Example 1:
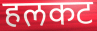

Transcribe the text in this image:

हलकट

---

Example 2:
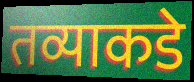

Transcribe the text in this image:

तव्याकडे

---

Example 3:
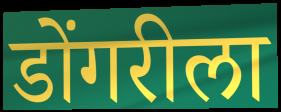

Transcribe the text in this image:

डोंगरीला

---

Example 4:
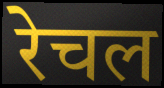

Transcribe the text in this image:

रेचल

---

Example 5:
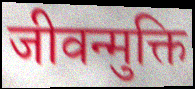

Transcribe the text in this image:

जीवन्मुक्ति